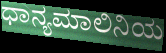
ಧಾನ್ಯಮಾಲಿನಿಯ